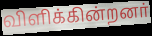
விளிக்கின்றனர்